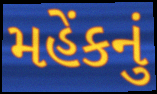
મહેંકનું